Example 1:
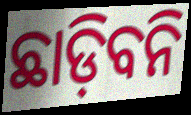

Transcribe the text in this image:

ଛାଡ଼ିବନି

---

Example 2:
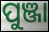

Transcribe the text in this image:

ପୁଞ୍ଜା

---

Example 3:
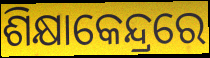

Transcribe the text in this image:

ଶିକ୍ଷାକେନ୍ଦ୍ରରେ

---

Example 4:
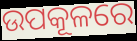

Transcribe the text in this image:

ଉପକୂଳରେ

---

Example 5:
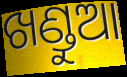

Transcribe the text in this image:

ଖଣ୍ଡୁଆ